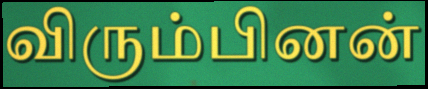
விரும்பினன்